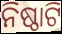
ନିଷ୍ଠାଟି